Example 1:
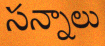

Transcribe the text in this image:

సన్నాలు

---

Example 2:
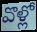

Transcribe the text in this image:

వొళ్లో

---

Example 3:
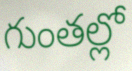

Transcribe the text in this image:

గుంతల్లో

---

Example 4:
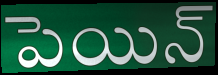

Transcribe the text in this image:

పెయిన్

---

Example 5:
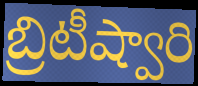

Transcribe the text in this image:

బ్రిటీష్వారి